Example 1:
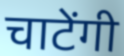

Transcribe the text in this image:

चाटेंगी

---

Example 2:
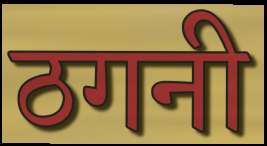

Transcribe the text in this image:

ठगनी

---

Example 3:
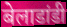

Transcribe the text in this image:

बेलाडांडी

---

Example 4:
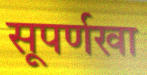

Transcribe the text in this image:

सूपर्णखा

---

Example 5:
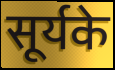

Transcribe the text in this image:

सूर्यके